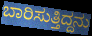
ಬಾರಿಸುತ್ತಿದ್ದನು